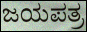
ಜಯಪತ್ರ